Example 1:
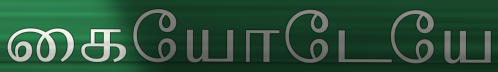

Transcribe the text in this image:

கையோடேயே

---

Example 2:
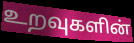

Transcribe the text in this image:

உறவுகளின்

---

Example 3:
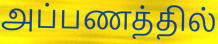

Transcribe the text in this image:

அப்பணத்தில்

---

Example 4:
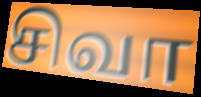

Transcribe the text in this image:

சிவா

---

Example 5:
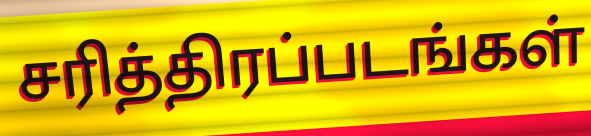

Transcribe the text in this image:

சரித்திரப்படங்கள்